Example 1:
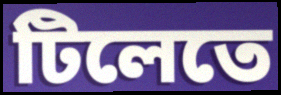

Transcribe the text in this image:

টিলেতে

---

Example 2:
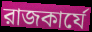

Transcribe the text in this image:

রাজকার্যে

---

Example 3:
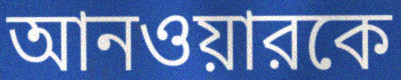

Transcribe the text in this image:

আনওয়ারকে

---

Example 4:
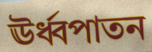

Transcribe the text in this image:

ঊর্ধ্বপাতন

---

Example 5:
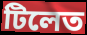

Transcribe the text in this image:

টিলেত